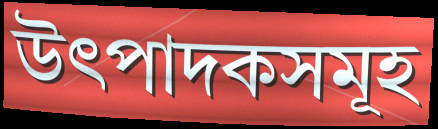
উৎপাদকসমূহ